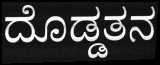
ದೊಡ್ಡತನ